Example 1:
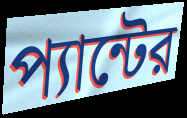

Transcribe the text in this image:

প্যান্টের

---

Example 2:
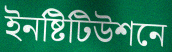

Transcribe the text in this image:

ইনষ্টিটিউশনে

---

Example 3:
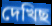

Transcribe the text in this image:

দেখিছ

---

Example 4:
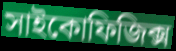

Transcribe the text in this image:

সাইকোফিজিক্স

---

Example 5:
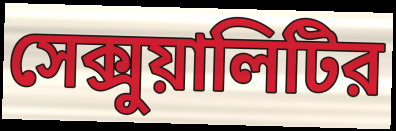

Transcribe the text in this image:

সেক্সুয়ালিটির